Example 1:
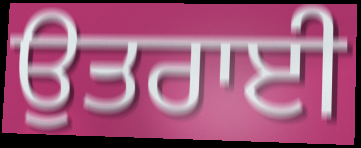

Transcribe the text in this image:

ਉਤਰਾਈ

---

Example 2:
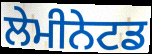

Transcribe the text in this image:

ਲੇਮੀਨੇਟਡ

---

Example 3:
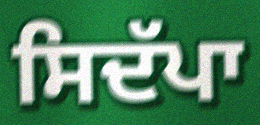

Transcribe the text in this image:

ਸਿਦੱਪਾ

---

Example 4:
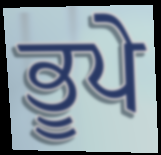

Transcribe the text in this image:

ਭੂਪੇ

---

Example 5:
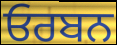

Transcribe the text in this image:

ਓਰਬਨ